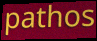
pathos